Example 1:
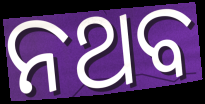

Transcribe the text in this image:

ନଥବ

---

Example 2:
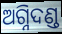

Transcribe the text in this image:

ଅଗ୍ନିଦଣ୍ଡ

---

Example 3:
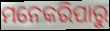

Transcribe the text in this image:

ମନେକରିପାରୁ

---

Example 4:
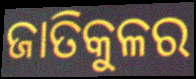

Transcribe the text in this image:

ଜାତିକୁଳର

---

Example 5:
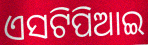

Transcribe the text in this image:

ଏସଟିପିଆଇ